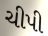
ચીપી